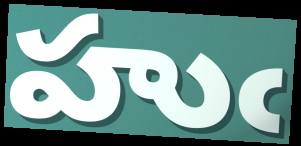
హుఁ